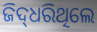
ଜିଦ୍‌ଧରିଥିଲେ